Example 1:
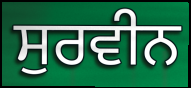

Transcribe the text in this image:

ਸੁਰਵੀਨ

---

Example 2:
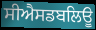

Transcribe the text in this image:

ਸੀਐਸਡਬਲਿਊ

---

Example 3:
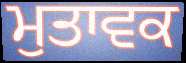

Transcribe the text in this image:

ਮੁਤਾਵਕ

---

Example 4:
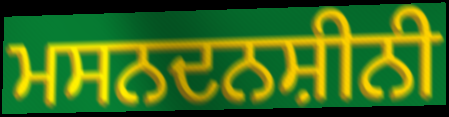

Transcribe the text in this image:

ਮਸਨਦਨਸ਼ੀਨੀ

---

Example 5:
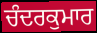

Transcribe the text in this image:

ਚੰਦਰਕੁਮਾਰ